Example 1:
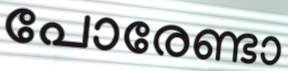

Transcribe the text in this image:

പോരേണ്ടാ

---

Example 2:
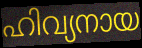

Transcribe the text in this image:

ഹിവ്യനായ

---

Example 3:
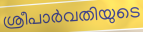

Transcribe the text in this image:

ശ്രീപാർവതിയുടെ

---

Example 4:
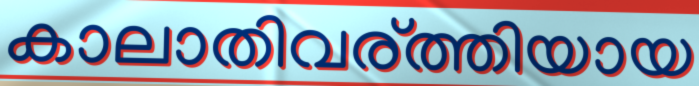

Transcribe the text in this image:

കാലാതിവര്ത്തിയായ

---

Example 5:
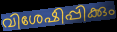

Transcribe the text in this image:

വിശേഷിപ്പിക്കും